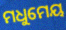
ମଧୁମେୟ